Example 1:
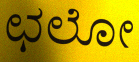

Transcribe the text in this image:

ಛಲೋ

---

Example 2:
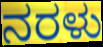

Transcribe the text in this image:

ನರಳು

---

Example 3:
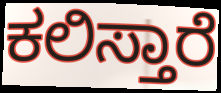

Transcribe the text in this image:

ಕಲಿಸ್ತಾರೆ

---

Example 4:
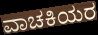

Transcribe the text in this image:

ವಾಚಕಿಯರ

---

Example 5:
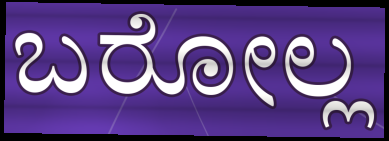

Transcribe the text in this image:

ಬರೋಲ್ಲ